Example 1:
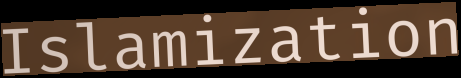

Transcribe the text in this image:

Islamization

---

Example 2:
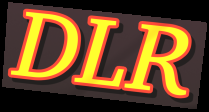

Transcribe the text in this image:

DLR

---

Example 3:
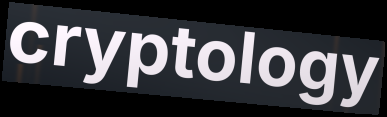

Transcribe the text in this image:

cryptology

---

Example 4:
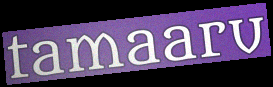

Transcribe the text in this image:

tamaaru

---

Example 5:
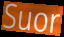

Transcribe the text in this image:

Suor